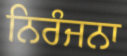
ਨਿਰੰਜਨਾ